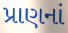
પ્રાણનાં